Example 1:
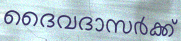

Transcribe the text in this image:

ദൈവദാസർക്ക്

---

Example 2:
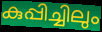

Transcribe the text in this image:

കുപ്പിച്ചിലും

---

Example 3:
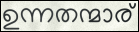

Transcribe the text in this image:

ഉന്നതന്മാര്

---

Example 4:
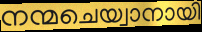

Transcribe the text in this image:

നന്മചെയ്വാനായി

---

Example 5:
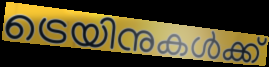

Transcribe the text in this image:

ട്രെയിനുകൾക്ക്